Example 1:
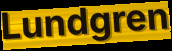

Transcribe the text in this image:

Lundgren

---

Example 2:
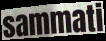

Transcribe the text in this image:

sammati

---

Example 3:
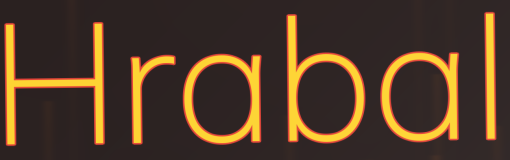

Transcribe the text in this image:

Hrabal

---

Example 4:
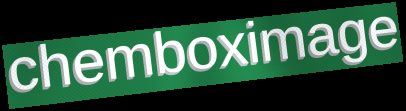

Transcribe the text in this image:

chemboximage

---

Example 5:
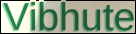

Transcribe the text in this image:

Vibhute